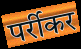
पर्रीकर